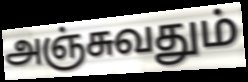
அஞ்சுவதும்